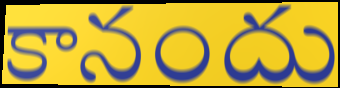
కానందు